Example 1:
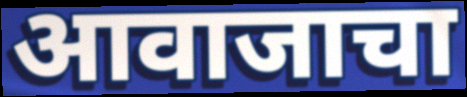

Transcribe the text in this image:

आवाजाचा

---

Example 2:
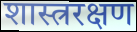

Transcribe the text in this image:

शास्त्ररक्षण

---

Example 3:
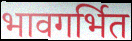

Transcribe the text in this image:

भावगर्भित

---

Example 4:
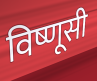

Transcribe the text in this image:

विष्णूसी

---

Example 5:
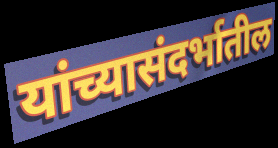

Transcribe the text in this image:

यांच्यासंदर्भातील